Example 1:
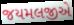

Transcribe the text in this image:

જયમલજીએ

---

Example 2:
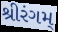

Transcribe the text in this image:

શ્રીરંગમ્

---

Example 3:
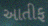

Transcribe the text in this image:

આતીફ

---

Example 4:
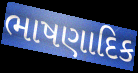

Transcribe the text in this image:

ભાષણાદિક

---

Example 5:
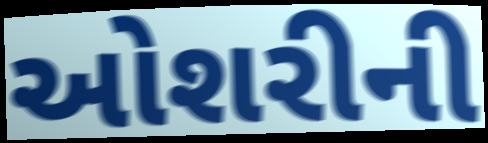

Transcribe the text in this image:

ઓશરીની